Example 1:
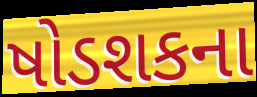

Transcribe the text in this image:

ષોડશકના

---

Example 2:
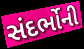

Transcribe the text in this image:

સંદર્ભોની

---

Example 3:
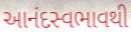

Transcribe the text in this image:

આનંદસ્વભાવથી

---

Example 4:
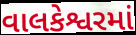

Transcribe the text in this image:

વાલકેશ્વરમાં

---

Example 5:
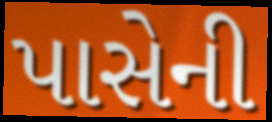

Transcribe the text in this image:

પાસેની